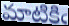
మాటికిఁ